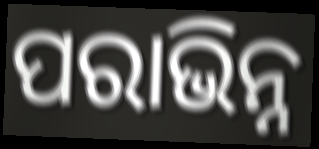
ପରାଭିନ୍ନ